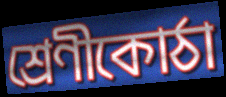
শ্ৰেণীকোঠা